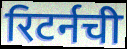
रिटर्नची